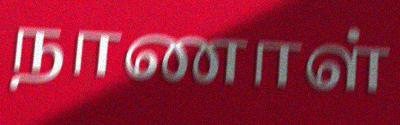
நாணாள்